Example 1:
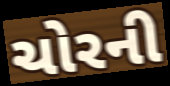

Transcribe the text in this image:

ચોરની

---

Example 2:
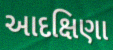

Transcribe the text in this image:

આદક્ષિણા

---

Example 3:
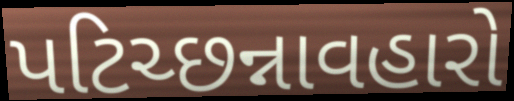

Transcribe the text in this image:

પટિચ્છન્નાવહારો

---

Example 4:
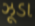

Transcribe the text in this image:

ઝૂડા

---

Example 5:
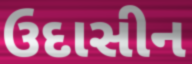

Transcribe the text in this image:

ઉદાસીન